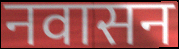
नवासन